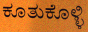
ಕೂತುಕೊಳ್ಳಿ